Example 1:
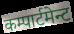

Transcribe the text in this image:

कम्पार्टमेन्ट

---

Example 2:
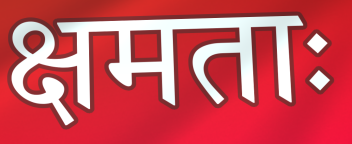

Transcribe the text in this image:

क्षमताः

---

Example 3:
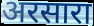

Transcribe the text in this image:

अरसारा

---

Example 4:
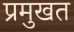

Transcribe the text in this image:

प्रमुखत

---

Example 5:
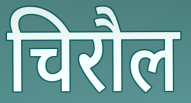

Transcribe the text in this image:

चिरौल